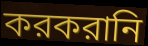
করকরানি